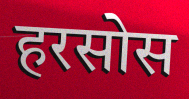
हरसोस